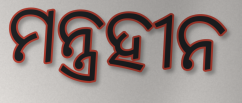
ମନ୍ତ୍ରହୀନ